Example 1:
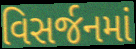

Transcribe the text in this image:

વિસર્જનમાં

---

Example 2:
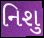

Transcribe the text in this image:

નિશુ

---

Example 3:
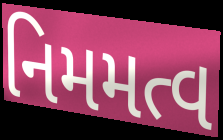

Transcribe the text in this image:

નિમમત્વ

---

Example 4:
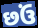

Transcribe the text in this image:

છઉં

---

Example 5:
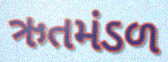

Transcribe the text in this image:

ઋતમંડળ